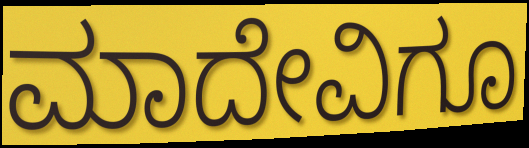
ಮಾದೇವಿಗೂ